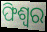
ଫିଶ୍ୱର